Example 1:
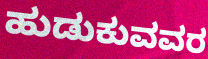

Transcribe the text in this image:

ಹುಡುಕುವವರ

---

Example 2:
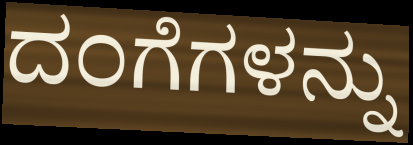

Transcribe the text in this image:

ದಂಗೆಗಳನ್ನು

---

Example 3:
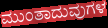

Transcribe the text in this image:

ಮುಂತಾದುವುಗಳ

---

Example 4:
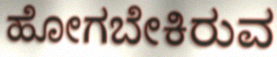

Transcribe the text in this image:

ಹೋಗಬೇಕಿರುವ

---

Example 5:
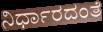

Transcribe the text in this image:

ನಿರ್ಧಾರದಂತೆ